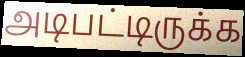
அடிபட்டிருக்க